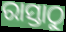
ରାସ୍ତାଠୁ